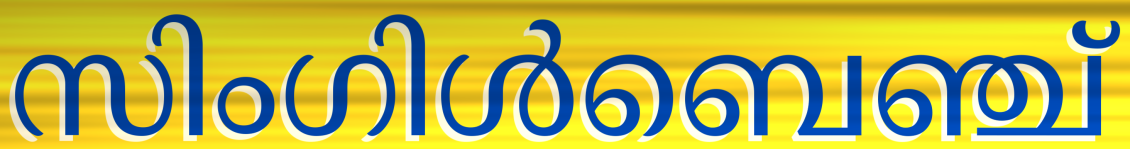
സിംഗിൾബെഞ്ച്